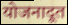
योजनादूत